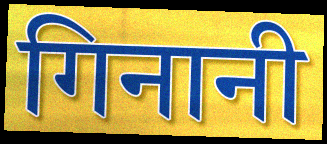
गिनानी